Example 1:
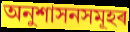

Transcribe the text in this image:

অনুশাসনসমূহৰ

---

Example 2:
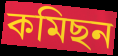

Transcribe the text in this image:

কমিছন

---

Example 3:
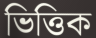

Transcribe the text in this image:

ভিত্তিক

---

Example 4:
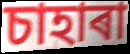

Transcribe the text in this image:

চাহাৰা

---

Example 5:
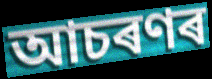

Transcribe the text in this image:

আচৰণৰ